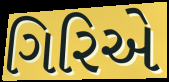
ગિરિએ